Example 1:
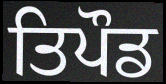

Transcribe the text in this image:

ਤਿਪੌਡ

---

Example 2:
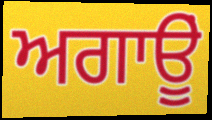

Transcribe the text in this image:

ਅਗਾਊੂਂ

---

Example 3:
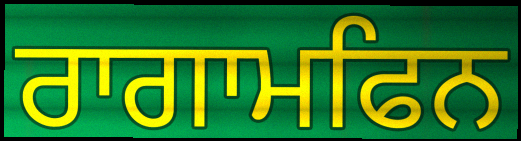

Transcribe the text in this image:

ਰਾਗਾਮਫਿਨ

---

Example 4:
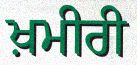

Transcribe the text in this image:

ਖ਼ਮੀਰੀ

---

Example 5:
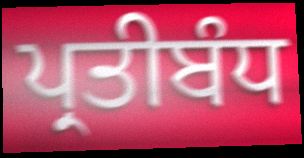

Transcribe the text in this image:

ਪ੍ਰਤੀਬੰਧ